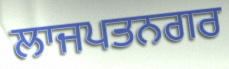
ਲਾਜਪਤਨਗਰ